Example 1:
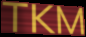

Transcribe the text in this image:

TKM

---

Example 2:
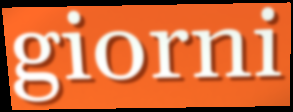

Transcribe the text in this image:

giorni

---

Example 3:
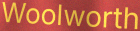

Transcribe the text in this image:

Woolworth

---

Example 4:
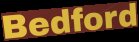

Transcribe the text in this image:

Bedford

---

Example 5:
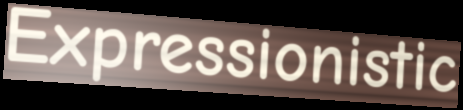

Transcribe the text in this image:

Expressionistic